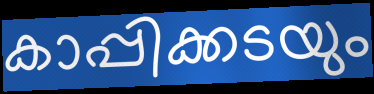
കാപ്പിക്കടയും